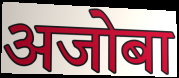
अजोबा